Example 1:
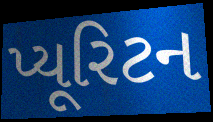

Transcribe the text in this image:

પ્યૂરિટન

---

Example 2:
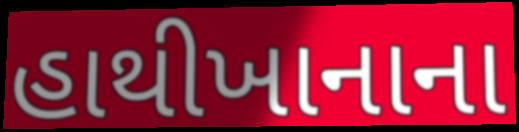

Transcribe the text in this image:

હાથીખાનાના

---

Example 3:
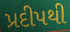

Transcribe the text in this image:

પ્રદીપથી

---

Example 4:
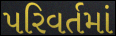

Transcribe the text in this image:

પરિવર્તમાં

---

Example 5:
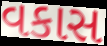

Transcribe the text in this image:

વકાસ